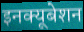
इनक्यूबेशन